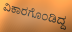
ವಿಕಾರಗೊಂಡಿದ್ದ